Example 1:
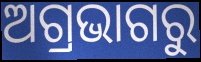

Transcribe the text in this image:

ଅଗ୍ରଭାଗରୁ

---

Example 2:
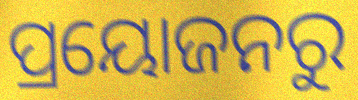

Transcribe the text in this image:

ପ୍ରୟୋଜନରୁ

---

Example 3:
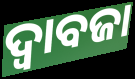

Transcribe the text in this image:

ଦ୍ୱାବଜା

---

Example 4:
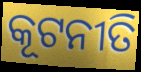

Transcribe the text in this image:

କୂଟନୀତି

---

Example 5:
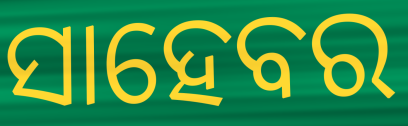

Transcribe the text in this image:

ସାହେବର